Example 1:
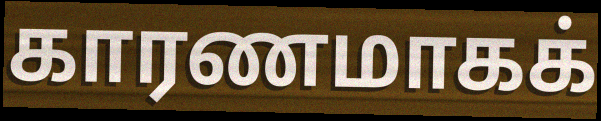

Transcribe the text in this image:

காரணமாகக்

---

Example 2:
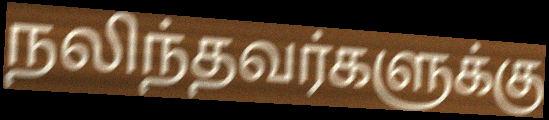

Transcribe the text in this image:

நலிந்தவர்களுக்கு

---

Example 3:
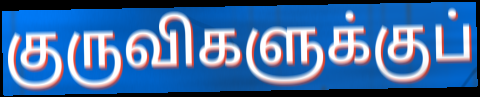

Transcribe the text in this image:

குருவிகளுக்குப்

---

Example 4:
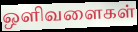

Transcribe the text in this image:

ஒளிவளைகள்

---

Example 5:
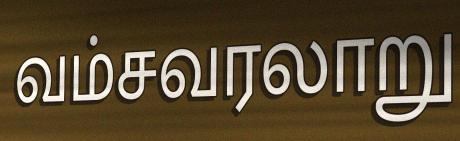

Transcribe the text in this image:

வம்சவரலாறு